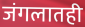
जंगलातही